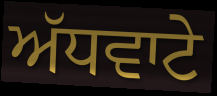
ਅੱਧਵਾਟੇ